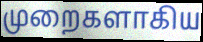
முறைகளாகிய